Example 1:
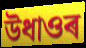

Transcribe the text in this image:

উধাওৰ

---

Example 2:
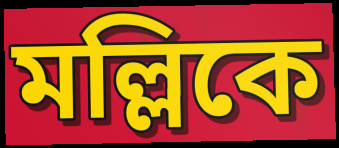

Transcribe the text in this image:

মল্লিকে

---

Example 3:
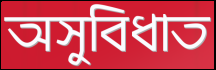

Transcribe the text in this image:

অসুবিধাত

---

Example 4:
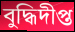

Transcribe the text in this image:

বুদ্ধিদীপ্ত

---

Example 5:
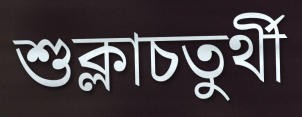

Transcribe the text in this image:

শুক্লাচতুৰ্থী